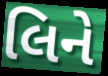
લિને